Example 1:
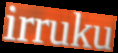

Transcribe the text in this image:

irruku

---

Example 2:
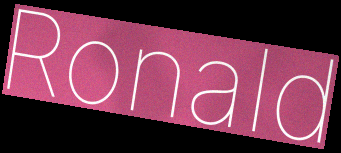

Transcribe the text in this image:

Ronald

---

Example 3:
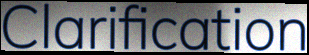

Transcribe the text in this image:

Clarification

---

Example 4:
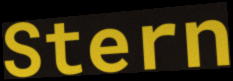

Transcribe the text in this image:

Stern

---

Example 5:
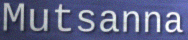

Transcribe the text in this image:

Mutsanna